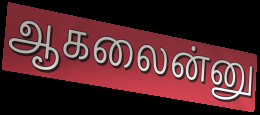
ஆகலைன்னு